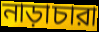
নাড়াচারা